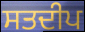
ਸਤਦੀਪ